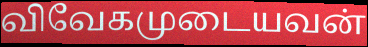
விவேகமுடையவன்